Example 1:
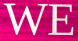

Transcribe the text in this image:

WE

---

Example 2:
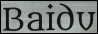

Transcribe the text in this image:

Baidu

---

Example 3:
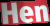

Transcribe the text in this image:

Hen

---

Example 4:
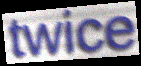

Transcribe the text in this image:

twice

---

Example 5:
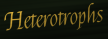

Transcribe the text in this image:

Heterotrophs